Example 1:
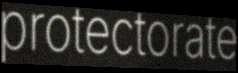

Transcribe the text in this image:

protectorate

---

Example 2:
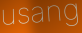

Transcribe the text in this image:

usang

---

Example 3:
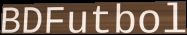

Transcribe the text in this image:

BDFutbol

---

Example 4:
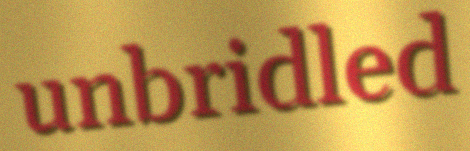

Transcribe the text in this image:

unbridled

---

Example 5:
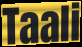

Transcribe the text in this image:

Taali